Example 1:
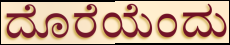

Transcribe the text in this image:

ದೊರೆಯೆಂದು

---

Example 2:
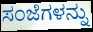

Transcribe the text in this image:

ಸಂಜೆಗಳನ್ನು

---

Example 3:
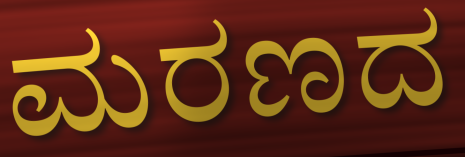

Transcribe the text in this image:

ಮರಣದ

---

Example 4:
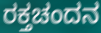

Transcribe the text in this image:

ರಕ್ತಚಂದನ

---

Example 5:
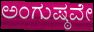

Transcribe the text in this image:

ಅಂಗುಷ್ಠವೇ